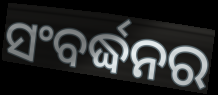
ସଂବର୍ଦ୍ଧନର